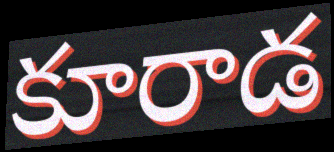
కూరాడ